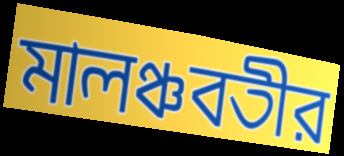
মালঞ্চবতীর